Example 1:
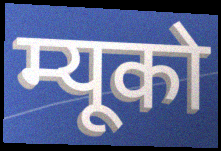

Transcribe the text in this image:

म्यूको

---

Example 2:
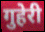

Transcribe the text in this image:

गुहेरी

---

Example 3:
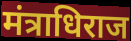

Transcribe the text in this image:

मंत्राधिराज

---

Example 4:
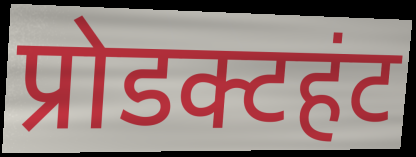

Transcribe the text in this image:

प्रोडक्टहंट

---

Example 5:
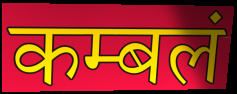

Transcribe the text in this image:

कम्बलं